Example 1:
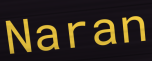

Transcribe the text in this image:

Naran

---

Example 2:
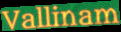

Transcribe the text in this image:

Vallinam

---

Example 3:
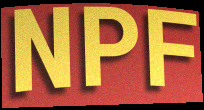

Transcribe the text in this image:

NPF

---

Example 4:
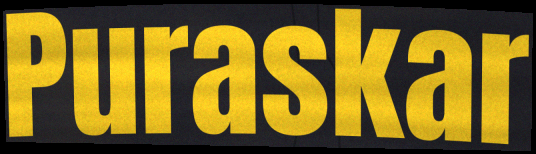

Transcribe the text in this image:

Puraskar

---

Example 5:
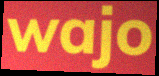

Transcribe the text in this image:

wajo